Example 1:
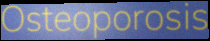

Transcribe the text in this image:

Osteoporosis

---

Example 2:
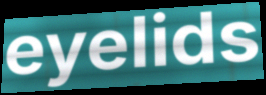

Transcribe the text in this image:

eyelids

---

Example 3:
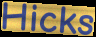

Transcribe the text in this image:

Hicks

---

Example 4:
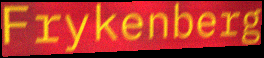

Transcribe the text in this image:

Frykenberg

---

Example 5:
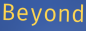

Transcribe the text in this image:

Beyond